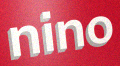
nino